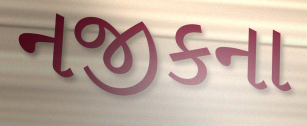
નજીકના